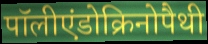
पॉलीएंडोक्रिनोपैथी